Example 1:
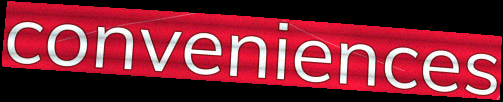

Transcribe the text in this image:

conveniences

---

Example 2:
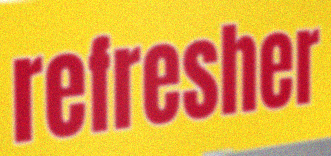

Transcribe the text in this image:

refresher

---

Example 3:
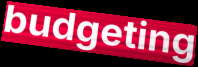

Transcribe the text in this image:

budgeting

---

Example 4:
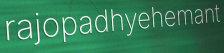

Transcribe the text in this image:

rajopadhyehemant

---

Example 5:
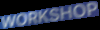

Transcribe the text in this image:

WORKSHOP